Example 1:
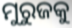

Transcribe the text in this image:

ମୁରୁଜକୁ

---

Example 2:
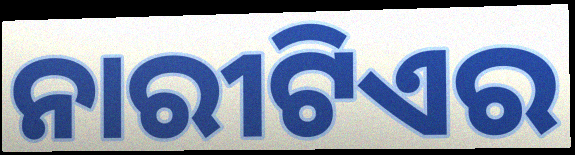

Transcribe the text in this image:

ନାରୀଟିଏର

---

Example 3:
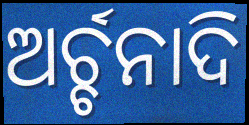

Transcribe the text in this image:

ଅର୍ଚ୍ଚନାଦି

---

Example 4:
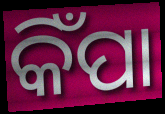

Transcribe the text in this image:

କିଁପା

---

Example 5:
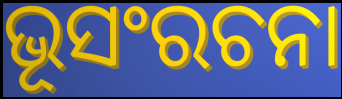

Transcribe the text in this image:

ଭୂସଂରଚନା